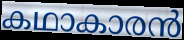
കഥാകാരൻ